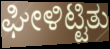
ಘೀಳಿಟ್ಟಿತು